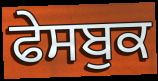
ਫੇਸਬੁਕ